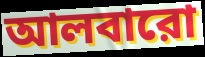
আলবারো